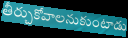
తీర్చుకోవాలనుకుంటాడు